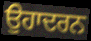
ਉਹਾਦਰਨ